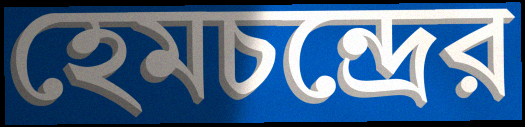
হেমচন্দ্রের